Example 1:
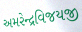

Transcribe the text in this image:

અમરેન્દ્રવિજયજી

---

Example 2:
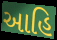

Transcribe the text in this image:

આહિ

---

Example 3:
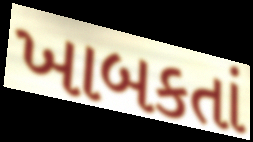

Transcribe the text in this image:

ખાબકતાં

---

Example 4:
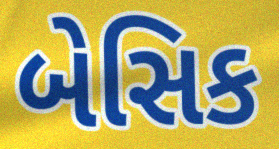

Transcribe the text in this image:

બેસિક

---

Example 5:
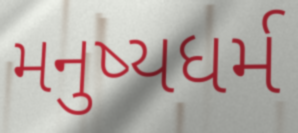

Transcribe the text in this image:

મનુષ્યધર્મ